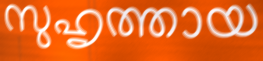
സുഹൃത്തായ